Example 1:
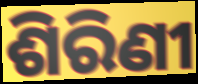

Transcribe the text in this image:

ଶିରିଣୀ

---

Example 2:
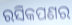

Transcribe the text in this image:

ରସିକପଣର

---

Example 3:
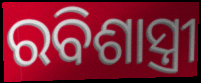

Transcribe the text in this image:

ରବିଶାସ୍ତ୍ରୀ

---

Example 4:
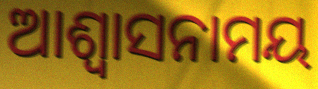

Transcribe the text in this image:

ଆଶ୍ୱାସନାମୟ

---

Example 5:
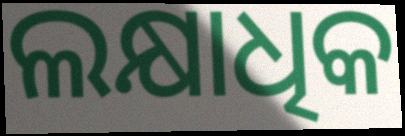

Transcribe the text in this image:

ଲକ୍ଷାଧିକ